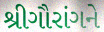
શ્રીગૌરાંગને